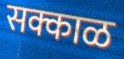
सक्काळ